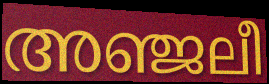
അഞ്ജലീ